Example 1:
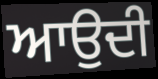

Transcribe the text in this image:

ਆਉਦੀ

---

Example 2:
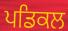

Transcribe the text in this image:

ਪਡਿਕਲ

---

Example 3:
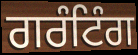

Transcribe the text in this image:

ਗਰੰਟਿੰਗ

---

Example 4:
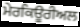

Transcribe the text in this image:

ਮੇਰਕਿਊਰੀਅਲ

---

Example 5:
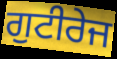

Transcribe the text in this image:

ਗੁਟੀਰੇਜ